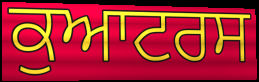
ਕੁਆਟਰਸ